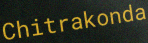
Chitrakonda